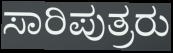
ಸಾರಿಪುತ್ರರು